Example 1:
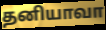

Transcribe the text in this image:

தனியாவா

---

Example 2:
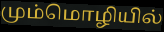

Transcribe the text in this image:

மும்மொழியில்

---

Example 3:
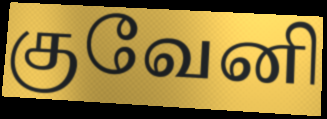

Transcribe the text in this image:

குவேனி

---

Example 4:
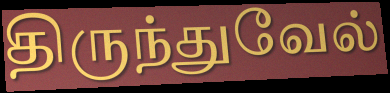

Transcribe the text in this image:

திருந்துவேல்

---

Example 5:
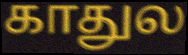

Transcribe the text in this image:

காதுல